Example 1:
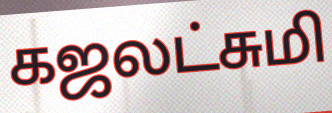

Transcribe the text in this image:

கஜலட்சுமி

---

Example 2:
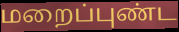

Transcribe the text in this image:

மறைப்புண்ட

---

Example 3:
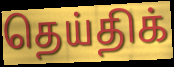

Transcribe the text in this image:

தெய்திக்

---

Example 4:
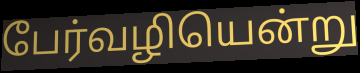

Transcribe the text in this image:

பேர்வழியென்று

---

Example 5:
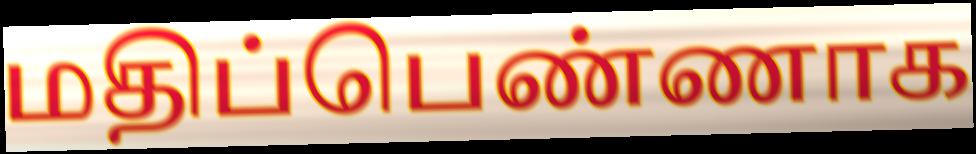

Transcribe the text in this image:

மதிப்பெண்ணாக